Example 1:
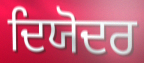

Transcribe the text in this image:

ਦਿਯੋਦਰ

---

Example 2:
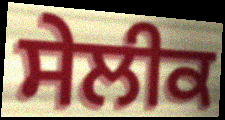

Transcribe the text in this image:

ਸੇਲੀਕ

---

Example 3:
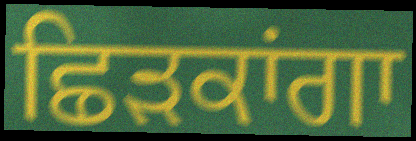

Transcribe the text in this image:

ਛਿੜਕਾਂਗਾ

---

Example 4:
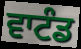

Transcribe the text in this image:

ਵਾਟੰਡ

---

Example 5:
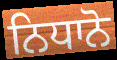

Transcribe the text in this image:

ਨਿਧਾਨੋ